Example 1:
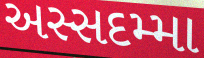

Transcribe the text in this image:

અસ્સદમ્મા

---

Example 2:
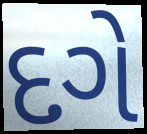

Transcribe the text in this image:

દગે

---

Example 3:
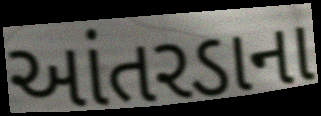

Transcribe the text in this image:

આંતરડાના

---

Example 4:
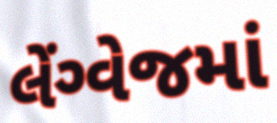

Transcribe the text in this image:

લેંગ્વેજમાં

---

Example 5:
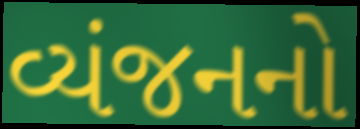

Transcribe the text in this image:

વ્યંજનનો